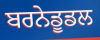
ਬਰਨੇਡੂਡਲ